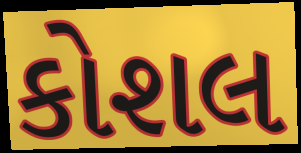
કોશલ